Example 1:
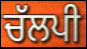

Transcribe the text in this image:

ਚੱਲਪੀ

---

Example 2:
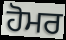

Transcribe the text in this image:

ਹੋਮਰ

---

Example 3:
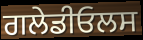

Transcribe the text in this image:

ਗਲੇਡੀਓਲਸ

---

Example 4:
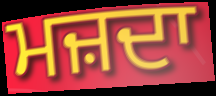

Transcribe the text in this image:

ਮਜ਼ਦਾ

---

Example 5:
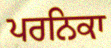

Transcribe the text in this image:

ਪਰਨਿਕਾ